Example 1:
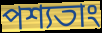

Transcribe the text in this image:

পশ্যতাং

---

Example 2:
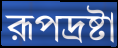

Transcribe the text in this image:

রূপদ্রষ্টা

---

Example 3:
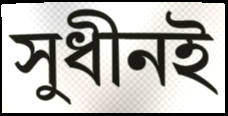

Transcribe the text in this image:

সুধীনই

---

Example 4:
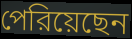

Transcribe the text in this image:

পেরিয়েছেন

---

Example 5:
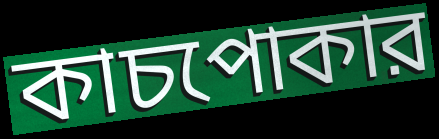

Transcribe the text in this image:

কাচপোকার